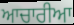
ਆਚਾਰੀਆ